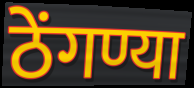
ठेंगण्या